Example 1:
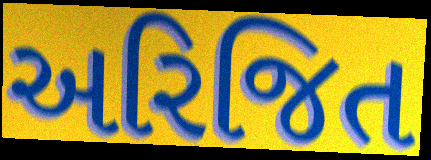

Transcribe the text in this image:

અરિજિત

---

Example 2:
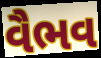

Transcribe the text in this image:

વૈભવ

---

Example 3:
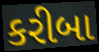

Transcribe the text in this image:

કરીબા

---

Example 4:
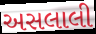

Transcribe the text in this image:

અસલાલી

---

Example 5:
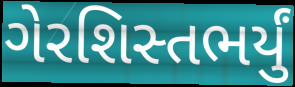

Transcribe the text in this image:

ગેરશિસ્તભર્યું